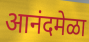
आनंदमेळा